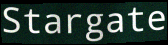
Stargate